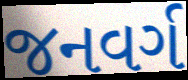
જનવર્ગ